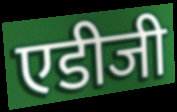
एडीजी